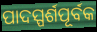
ପାଦସ୍ପର୍ଶପୂର୍ବକ